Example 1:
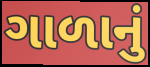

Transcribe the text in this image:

ગાળાનું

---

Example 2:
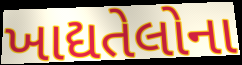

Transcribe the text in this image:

ખાદ્યતેલોના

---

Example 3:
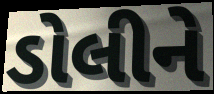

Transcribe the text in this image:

ડોલીને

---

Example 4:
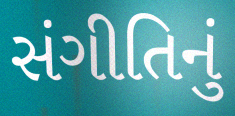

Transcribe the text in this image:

સંગીતિનું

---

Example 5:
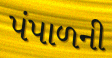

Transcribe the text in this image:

પંપાળની